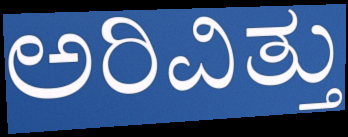
ಅರಿವಿತ್ತು